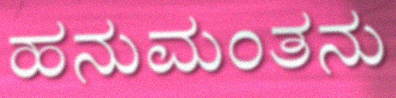
ಹನುಮಂತನು